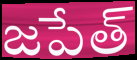
జపేత్